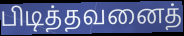
பிடித்தவனைத்